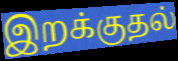
இறக்குதல்